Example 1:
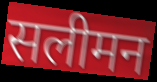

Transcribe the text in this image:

सलीमन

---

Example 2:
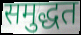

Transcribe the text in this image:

समुद्धत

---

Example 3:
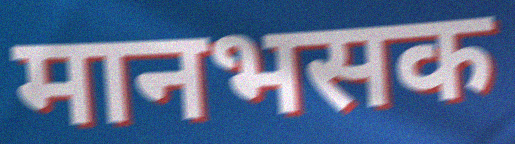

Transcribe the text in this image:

मानभसक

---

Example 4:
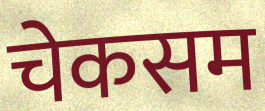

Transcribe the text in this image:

चेकसम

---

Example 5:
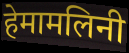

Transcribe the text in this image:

हेमामलिनी